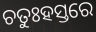
ଚତୁଃହସ୍ତରେ